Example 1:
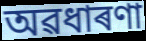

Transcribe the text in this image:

অৱধাৰণা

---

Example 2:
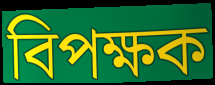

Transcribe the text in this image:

বিপক্ষক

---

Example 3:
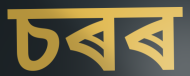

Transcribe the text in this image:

চৰৰ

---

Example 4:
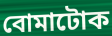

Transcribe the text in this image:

বোমাটোক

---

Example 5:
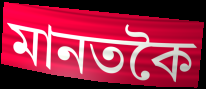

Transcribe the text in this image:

মানতকৈ